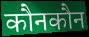
कौनकौन